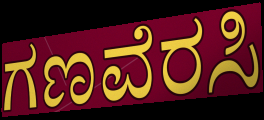
ಗಣವೆರಸಿ